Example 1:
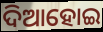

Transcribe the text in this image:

ଦିଆହୋଇ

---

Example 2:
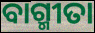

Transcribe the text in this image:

ବାଗ୍ମୀତା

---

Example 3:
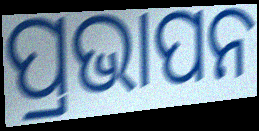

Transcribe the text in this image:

ପ୍ରଭାପନ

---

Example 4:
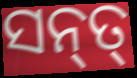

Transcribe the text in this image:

ସନ୍‌ତ୍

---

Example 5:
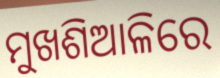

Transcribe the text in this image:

ମୁଖଶିଆଳିରେ